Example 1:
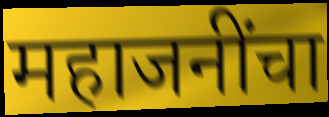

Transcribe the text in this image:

महाजनींचा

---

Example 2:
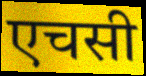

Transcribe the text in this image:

एचसी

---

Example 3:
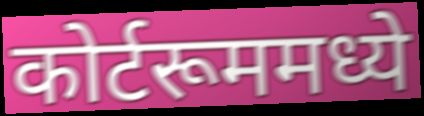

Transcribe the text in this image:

कोर्टरूममध्ये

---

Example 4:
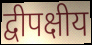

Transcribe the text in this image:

द्वीपक्षीय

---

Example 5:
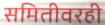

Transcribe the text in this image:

समितीवरही